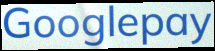
Googlepay